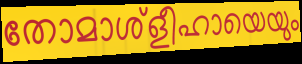
തോമാശ്ളീഹായെയും